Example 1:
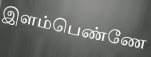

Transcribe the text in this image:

இளம்பெண்ணே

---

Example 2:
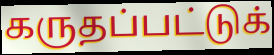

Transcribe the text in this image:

கருதப்பட்டுக்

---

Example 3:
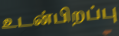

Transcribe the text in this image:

உடன்பிறப்பு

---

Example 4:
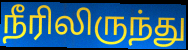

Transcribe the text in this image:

நீரிலிருந்து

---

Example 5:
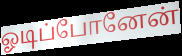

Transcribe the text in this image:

ஓடிப்போனேன்